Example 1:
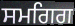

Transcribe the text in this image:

ਸਮਗਿਗ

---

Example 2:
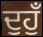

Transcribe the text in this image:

ਦੁਹੁਁ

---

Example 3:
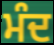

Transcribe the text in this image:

ਮੰਦ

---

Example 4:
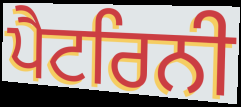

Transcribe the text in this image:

ਪੈਟਰਿਨੀ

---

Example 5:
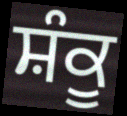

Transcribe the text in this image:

ਸ਼ੰਕੂ